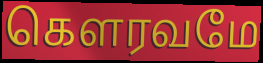
கௌரவமே